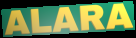
ALARA